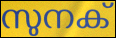
സുനക്